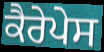
ਕੈਰੇਪੇਸ